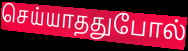
செய்யாததுபோல்